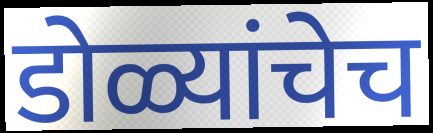
डोळ्यांचेच